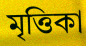
মৃত্তিকা